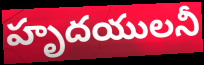
హృదయులనీ